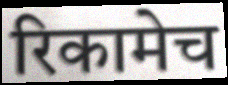
रिकामेच